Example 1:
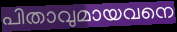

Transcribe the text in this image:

പിതാവുമായവനെ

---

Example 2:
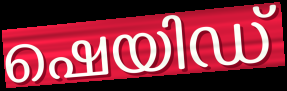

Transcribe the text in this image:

ഷെയിഡ്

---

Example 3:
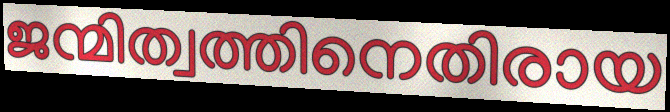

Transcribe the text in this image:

ജന്മിത്വത്തിനെതിരായ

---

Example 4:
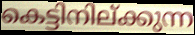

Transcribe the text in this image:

കെട്ടിനില്ക്കുന്ന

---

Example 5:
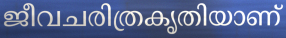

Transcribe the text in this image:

ജീവചരിത്രകൃതിയാണ്